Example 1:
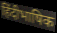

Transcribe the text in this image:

हिंदीभाषिक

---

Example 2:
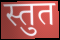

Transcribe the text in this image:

स्तुत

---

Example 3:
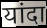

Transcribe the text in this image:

यांदा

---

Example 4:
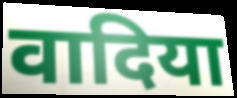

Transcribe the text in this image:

वादिया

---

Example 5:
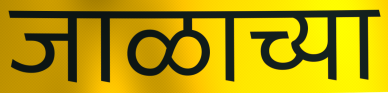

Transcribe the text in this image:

जाळाच्या